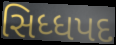
સિધ્ધપદ